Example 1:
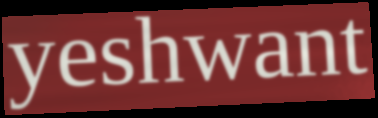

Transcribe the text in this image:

yeshwant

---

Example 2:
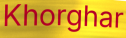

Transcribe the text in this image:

Khorghar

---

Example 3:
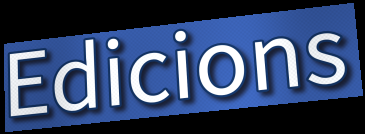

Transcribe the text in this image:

Edicions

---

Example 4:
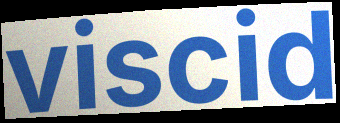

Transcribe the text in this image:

viscid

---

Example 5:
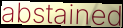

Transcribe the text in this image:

abstained